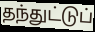
தந்துட்டுப்